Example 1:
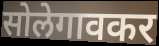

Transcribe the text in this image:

सोलेगावकर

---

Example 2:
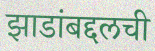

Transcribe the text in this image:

झाडांबद्दलची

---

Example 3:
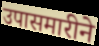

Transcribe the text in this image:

उपासमारीने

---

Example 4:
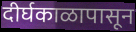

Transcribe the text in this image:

दीर्घकाळापासून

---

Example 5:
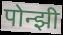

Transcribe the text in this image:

पोन्झी